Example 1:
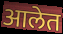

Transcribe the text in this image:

आलेत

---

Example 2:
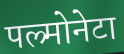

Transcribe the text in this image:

पल्मोनेटा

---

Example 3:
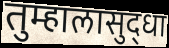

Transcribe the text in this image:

तुम्हालासुद्धा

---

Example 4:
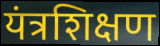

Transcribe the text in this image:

यंत्रशिक्षण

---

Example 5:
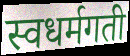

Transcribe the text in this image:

स्वधर्मगती